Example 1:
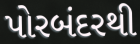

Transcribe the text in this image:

પોરબંદરથી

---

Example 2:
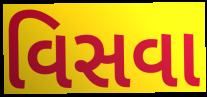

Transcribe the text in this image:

વિસવા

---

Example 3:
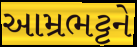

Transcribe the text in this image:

આમ્રભટ્ટને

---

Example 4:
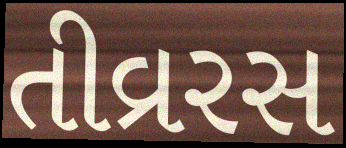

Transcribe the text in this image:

તીવ્રરસ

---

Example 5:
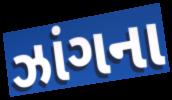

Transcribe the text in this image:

ઝાંગના